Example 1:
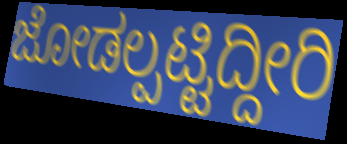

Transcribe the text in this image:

ಜೋಡಲ್ಪಟ್ಟಿದ್ದೀರಿ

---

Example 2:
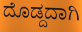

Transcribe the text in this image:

ದೊಡ್ದದಾಗಿ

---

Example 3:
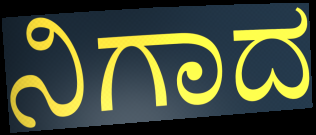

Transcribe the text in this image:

ನಿಗಾದ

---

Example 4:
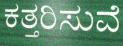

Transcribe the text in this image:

ಕತ್ತರಿಸುವೆ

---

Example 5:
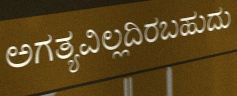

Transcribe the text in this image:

ಅಗತ್ಯವಿಲ್ಲದಿರಬಹುದು